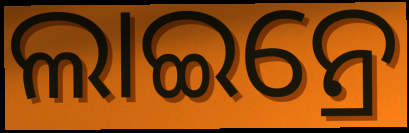
ଲାଇନ୍ରେ